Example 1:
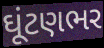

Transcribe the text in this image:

ઘૂંટણભર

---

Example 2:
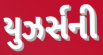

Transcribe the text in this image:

યુઝર્સની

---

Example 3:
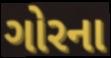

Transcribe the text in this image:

ગોરના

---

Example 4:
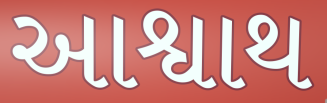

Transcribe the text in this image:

આશ્વાથ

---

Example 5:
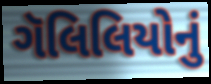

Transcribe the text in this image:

ગૅલિલિયોનું